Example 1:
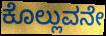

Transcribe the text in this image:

ಕೊಲ್ಲುವನೇ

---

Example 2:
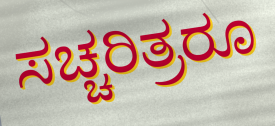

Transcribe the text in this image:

ಸಚ್ಚರಿತ್ರರೂ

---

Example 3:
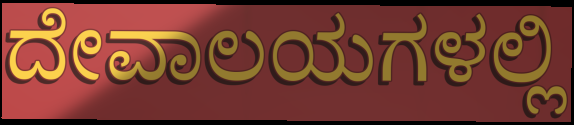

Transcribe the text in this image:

ದೇವಾಲಯಗಳಲ್ಲಿ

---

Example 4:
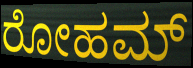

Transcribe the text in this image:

ರೋಹಮ್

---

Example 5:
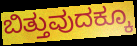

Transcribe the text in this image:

ಬಿತ್ತುವುದಕ್ಕೂ